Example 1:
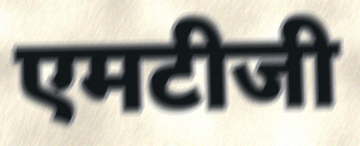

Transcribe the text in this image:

एमटीजी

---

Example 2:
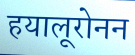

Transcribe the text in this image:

हयालूरोनन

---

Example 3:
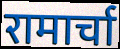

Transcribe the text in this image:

रामार्चा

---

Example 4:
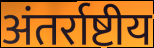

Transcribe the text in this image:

अंतर्राष्टीय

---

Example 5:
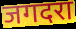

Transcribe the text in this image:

जगदरा